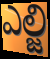
ఎల్జి